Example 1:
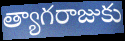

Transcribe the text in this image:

త్యాగరాజుకు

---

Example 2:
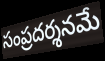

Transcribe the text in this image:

సంప్రదర్శనమే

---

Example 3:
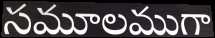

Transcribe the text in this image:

సమూలముగా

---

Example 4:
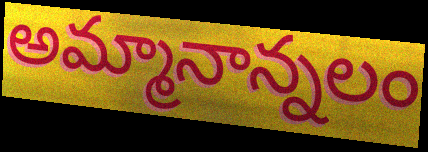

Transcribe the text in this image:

అమ్మానాన్నలం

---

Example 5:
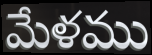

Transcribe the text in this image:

మేళము